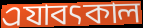
এযাবৎকাল